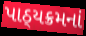
પાઠ્યક્રમનાં